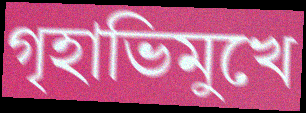
গৃহাভিমুখে